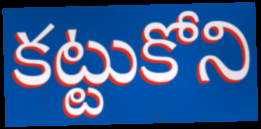
కట్టుకోని